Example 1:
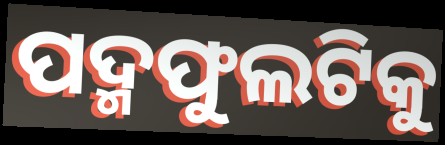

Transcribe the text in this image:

ପଦ୍ମଫୁଲଟିକୁ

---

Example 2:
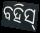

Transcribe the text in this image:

ବହିସ୍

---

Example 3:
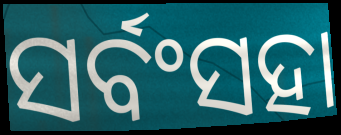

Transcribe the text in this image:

ସର୍ବଂସହା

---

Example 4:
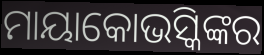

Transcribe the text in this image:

ମାୟାକୋଭସ୍କିଙ୍କର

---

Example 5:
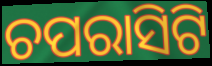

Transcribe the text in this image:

ଚପରାସିଟି